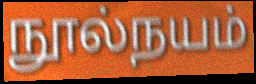
நூல்நயம்